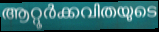
ആറ്റൂർക്കവിതയുടെ